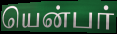
யென்பர்